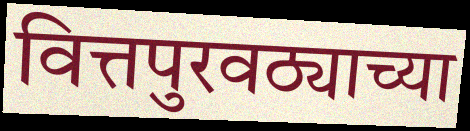
वित्तपुरवठ्याच्या